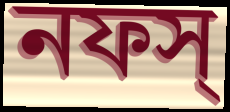
নফস্